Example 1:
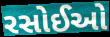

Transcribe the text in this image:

રસોઈઓ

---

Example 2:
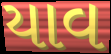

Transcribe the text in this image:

યાવ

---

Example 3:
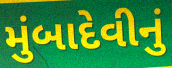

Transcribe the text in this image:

મુંબાદેવીનું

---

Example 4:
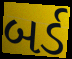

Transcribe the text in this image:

બર્ડ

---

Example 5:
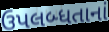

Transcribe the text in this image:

ઉપલબ્ધતાનાં